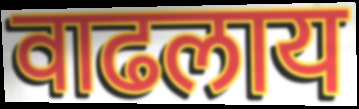
वाढलाय